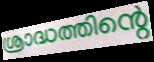
ശ്രാദ്ധത്തിന്റെ